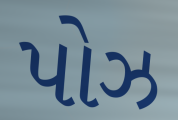
પોઝ